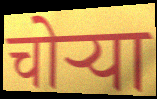
चोऱ्या